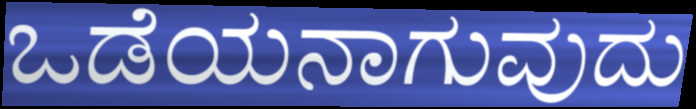
ಒಡೆಯನಾಗುವುದು